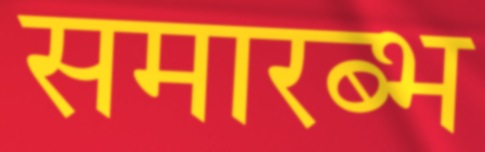
समारब्भ